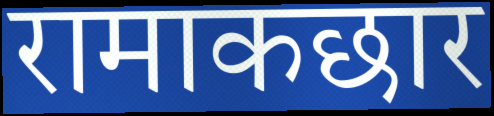
रामाकछार